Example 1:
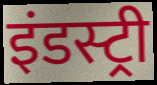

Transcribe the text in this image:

इंडस्‍ट्री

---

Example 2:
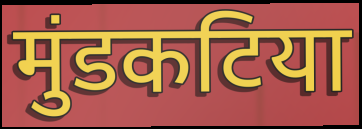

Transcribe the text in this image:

मुंडकटिया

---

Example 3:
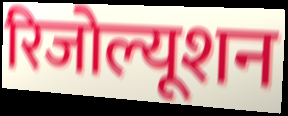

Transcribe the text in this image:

रिजोल्‍यूशन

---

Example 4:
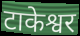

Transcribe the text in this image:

टाकेश्वर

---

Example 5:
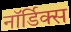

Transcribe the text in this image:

नॉर्डिक्स